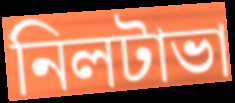
নিলটাভা